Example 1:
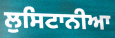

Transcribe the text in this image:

ਲੁਸਿਟਾਨੀਆ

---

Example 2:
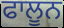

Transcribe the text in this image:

ਫਾਲੂਨ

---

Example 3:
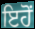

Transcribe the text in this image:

ਇਹੋਂ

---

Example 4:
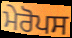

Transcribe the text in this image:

ਮੇਰੋਪਸ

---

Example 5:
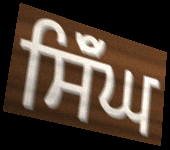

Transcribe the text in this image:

ਸਿੱੰਘ